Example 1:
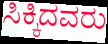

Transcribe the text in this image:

ಸಿಕ್ಕಿದವರು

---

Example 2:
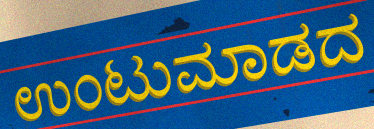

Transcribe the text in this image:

ಉಂಟುಮಾಡದ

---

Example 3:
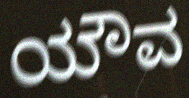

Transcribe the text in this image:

ಯೌವ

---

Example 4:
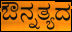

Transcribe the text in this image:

ಔನ್ನತ್ಯದ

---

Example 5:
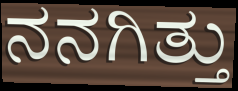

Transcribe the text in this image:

ನನಗಿತ್ತು